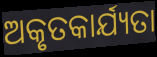
ଅକୃତକାର୍ଯ୍ୟତା